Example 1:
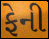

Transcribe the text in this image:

ફેની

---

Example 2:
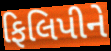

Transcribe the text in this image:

ફિલિપીને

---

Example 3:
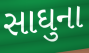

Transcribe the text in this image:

સાઘુના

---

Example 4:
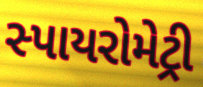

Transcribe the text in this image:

સ્પાયરોમેટ્રી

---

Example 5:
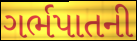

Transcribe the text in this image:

ગર્ભપાતની